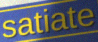
satiate